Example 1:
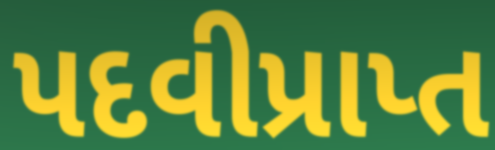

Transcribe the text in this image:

પદવીપ્રાપ્ત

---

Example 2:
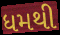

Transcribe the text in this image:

ધમથી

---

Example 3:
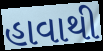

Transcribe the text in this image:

હાવાથી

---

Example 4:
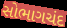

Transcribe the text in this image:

સોભાગચંદ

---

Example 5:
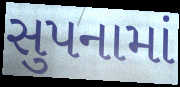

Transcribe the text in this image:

સુપનામાં